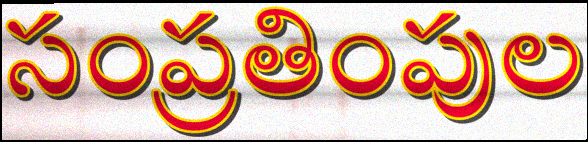
సంప్రతింపుల